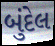
બુંદેલ